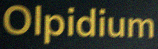
Olpidium